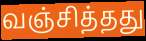
வஞ்சித்தது